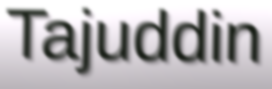
Tajuddin